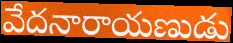
వేదనారాయణుడు